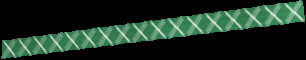
xxxxxxxxxxxxxxxxx